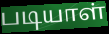
படியாள்